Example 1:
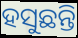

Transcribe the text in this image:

ହସୁଛନ୍ତି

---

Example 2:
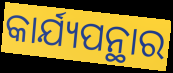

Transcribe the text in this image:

କାର୍ଯ୍ୟପନ୍ଥାର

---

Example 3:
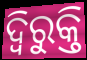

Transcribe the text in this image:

ଦ୍ୱିରୁକ୍ତି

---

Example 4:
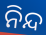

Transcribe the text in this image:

ନିନ୍ଦ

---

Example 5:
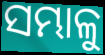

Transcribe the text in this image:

ସମ୍ଭାଳୁ